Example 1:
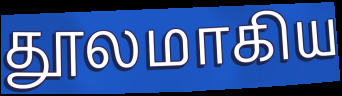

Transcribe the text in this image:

தூலமாகிய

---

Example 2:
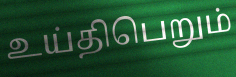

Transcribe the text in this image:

உய்திபெறும்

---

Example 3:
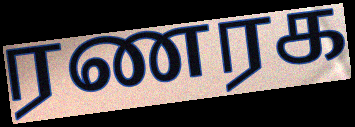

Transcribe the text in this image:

ரணரக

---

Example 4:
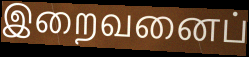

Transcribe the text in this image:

இறைவனைப்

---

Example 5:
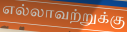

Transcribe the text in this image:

எல்லாவற்றுக்கு